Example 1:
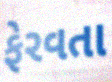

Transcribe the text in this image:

ફેરવતા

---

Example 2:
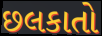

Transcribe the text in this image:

છલકાતો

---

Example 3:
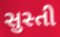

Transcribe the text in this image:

સુસ્તી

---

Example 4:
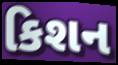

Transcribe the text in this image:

કિશન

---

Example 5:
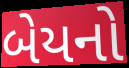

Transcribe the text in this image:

બેયનો